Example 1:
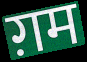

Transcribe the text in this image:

ग़म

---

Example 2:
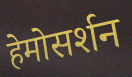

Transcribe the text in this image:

हेमोसर्शन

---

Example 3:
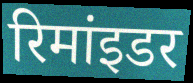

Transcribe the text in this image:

रिमांइडर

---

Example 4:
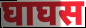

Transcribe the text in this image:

घाघस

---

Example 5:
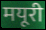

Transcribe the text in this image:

मयूरी